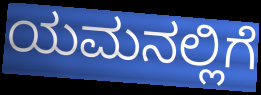
ಯಮನಲ್ಲಿಗೆ